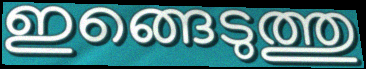
ഇങ്ങെടുത്തു